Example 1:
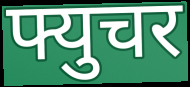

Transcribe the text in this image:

फ्युचर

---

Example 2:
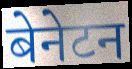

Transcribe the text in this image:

बेनेटन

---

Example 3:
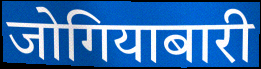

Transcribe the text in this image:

जोगियाबारी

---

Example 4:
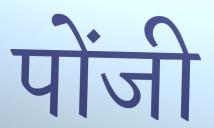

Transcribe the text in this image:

पोंजी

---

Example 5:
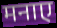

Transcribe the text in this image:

मनाए